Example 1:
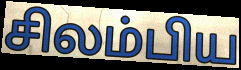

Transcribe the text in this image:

சிலம்பிய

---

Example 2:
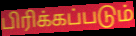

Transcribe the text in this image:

பிரிக்கப்படும்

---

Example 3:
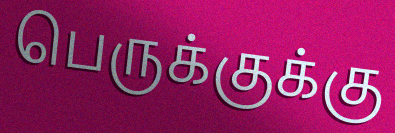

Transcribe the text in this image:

பெருக்குக்கு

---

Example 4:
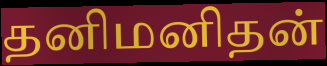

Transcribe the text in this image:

தனிமனிதன்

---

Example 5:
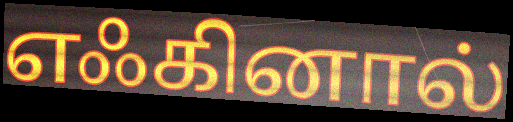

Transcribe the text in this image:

எஃகினால்